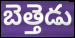
బెత్తెడు